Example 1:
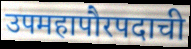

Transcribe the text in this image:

उपमहापौरपदाची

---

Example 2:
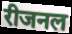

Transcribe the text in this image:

रीजनल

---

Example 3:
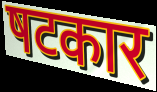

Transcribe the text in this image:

षटकार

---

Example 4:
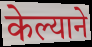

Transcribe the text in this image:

केल्याने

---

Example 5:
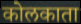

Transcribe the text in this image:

कोलकाता